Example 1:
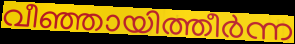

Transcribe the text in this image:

വീഞ്ഞായിത്തീർന്ന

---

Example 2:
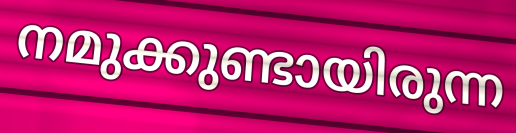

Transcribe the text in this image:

നമുക്കുണ്ടായിരുന്ന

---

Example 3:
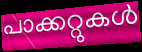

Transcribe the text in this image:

പാക്കറ്റുകൾ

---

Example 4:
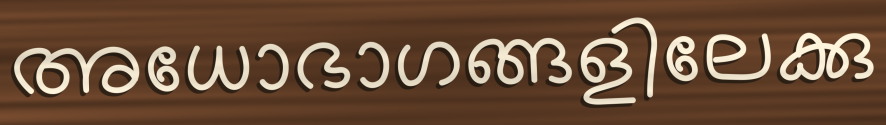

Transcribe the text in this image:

അധോഭാഗങ്ങളിലേക്കു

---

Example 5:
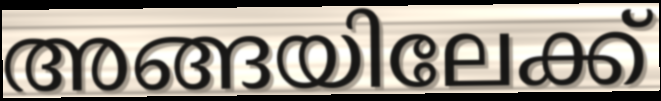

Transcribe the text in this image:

അങ്ങയിലേക്ക്